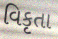
વિકૃતા